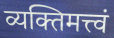
व्यक्तिमत्त्वं